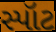
સ્પૉટ